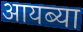
आयब्या